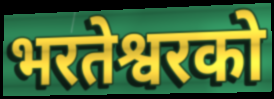
भरतेश्वरको